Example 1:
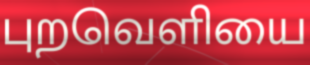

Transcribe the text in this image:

புறவெளியை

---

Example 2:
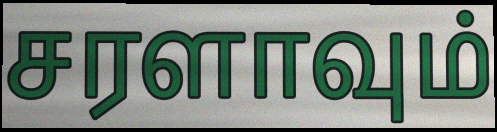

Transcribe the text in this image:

சரளாவும்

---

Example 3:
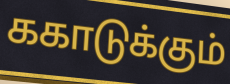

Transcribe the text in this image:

ககாடுக்கும்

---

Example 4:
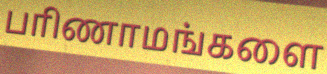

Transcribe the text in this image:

பரிணாமங்களை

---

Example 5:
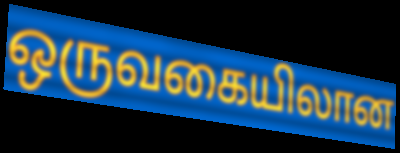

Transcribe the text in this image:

ஒருவகையிலான